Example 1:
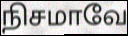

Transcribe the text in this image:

நிசமாவே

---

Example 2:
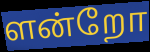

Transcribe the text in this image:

ளன்றோ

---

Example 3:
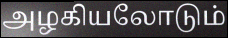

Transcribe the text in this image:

அழகியலோடும்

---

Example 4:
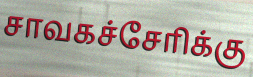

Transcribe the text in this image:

சாவகச்சேரிக்கு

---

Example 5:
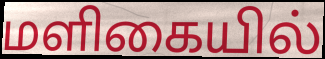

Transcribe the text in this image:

மளிகையில்